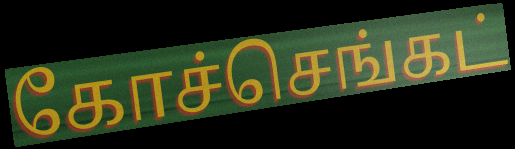
கோச்செங்கட்